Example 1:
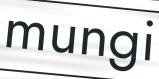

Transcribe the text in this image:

mungi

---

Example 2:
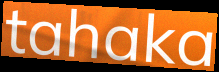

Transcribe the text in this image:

tahaka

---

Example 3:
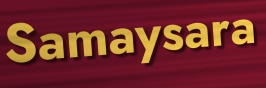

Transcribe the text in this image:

Samaysara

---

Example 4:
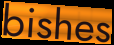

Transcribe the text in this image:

bishes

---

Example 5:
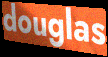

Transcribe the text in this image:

douglas